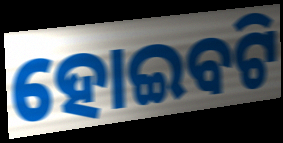
ହୋଇବଟି